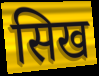
सिख